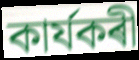
কাৰ্যকৰী